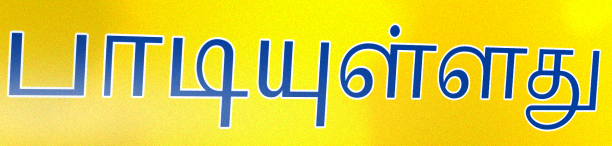
பாடியுள்ளது